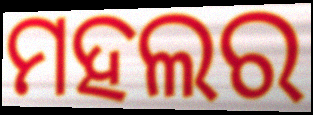
ମହଲର